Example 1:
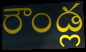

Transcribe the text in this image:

రౌండ్ల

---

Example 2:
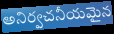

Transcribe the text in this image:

అనిర్వచనీయమైన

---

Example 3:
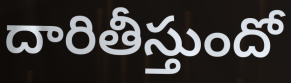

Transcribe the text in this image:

దారితీస్తుందో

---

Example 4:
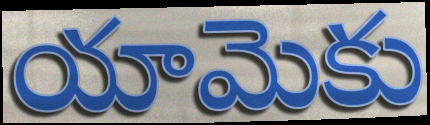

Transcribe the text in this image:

యామెకు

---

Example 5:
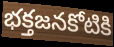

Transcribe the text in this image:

భక్తజనకోటికి